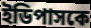
ইডিপাসকে